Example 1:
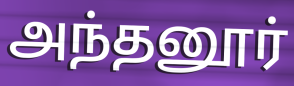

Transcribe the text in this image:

அந்தனூர்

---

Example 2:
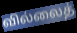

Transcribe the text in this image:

வில்லைத்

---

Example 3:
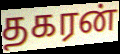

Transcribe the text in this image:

தகரன்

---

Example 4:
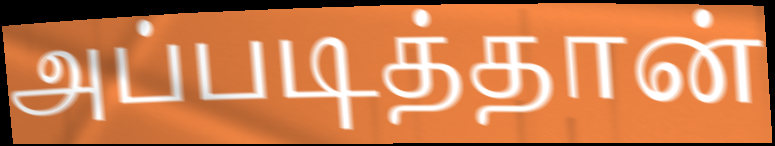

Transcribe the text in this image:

அப்படித்தான்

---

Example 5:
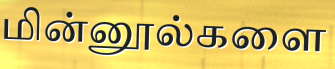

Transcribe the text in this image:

மின்னூல்களை